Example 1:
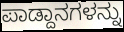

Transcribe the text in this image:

ಪಾಡ್ದಾನಗಳನ್ನು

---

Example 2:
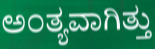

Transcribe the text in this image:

ಅಂತ್ಯವಾಗಿತ್ತು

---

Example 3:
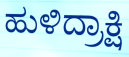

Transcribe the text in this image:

ಹುಳಿದ್ರಾಕ್ಷಿ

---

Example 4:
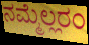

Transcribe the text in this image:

ನಮ್ಮೆಲ್ಲರಂ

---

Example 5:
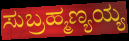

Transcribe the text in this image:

ಸುಬ್ರಹ್ಮಣ್ಯಯ್ಯ